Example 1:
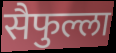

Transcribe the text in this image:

सैफुल्ला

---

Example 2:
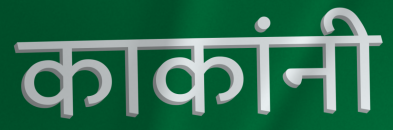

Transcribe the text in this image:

काकांनी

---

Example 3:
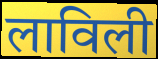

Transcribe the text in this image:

लाविली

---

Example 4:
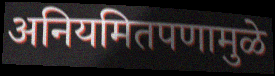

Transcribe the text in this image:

अनियमितपणामुळे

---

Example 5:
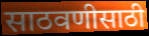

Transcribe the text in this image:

साठवणीसाठी